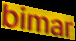
bimar